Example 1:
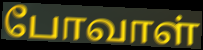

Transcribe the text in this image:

போவாள்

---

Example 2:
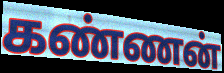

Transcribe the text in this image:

கண்ணன்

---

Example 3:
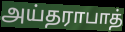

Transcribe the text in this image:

அய்தராபாத்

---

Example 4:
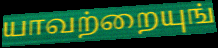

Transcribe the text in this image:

யாவற்றையுங்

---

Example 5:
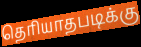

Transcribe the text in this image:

தெரியாதபடிக்கு